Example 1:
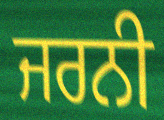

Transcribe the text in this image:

ਜਰਨੀ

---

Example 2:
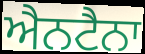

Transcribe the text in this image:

ਐਨਟੈਨਾ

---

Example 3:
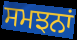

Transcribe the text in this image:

ਸਮਝਨਾਂ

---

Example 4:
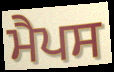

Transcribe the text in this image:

ਮੈਪਸ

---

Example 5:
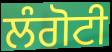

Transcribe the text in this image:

ਲੰਗੋਟੀ